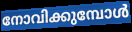
നോവിക്കുമ്പോൾ